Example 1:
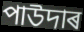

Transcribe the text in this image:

পাউদাৰ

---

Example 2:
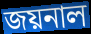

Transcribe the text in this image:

জয়নাল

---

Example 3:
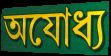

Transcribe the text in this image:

অযোধ্য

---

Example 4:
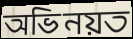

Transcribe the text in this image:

অভিনয়ত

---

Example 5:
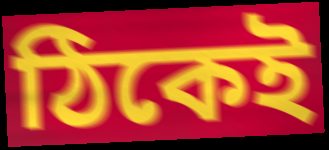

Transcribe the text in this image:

ঠিকেই